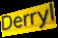
Derryl